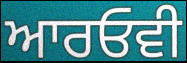
ਆਰਓਵੀ